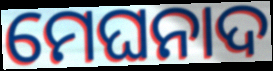
ମେଘନାଦ